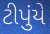
ટીપુંયે